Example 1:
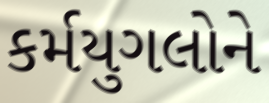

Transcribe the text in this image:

કર્મયુગલોને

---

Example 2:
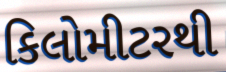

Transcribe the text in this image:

કિલોમીટરથી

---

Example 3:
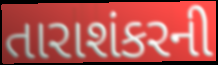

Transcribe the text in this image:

તારાશંકરની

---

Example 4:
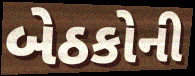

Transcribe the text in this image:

બેઠકોની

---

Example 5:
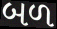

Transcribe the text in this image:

બળ